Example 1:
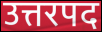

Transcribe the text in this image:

उत्तरपद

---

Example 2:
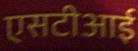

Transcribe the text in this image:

एसटीआई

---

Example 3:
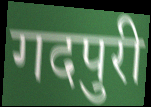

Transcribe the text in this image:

गदपुरी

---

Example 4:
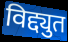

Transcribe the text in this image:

विद्द्युत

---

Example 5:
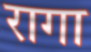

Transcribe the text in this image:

रागा